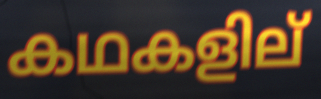
കഥകളില്